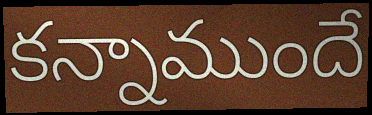
కన్నాముందే